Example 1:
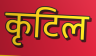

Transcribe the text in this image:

कृटिल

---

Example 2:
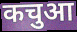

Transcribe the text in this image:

कचुआ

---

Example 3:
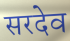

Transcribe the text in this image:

सरदेव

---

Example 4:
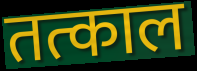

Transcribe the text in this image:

तत्‍काल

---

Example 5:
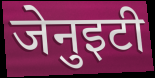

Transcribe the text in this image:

जेनुइटी